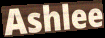
Ashlee